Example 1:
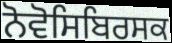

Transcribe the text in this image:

ਨੋਵੋਸਿਬਿਰਸਕ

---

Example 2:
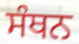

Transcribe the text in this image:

ਸੰਥਨ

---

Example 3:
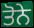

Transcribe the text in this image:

ਤੋਨੇ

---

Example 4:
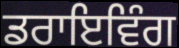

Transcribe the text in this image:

ਡਰਾਇਵਿੰਗ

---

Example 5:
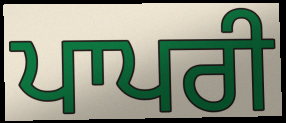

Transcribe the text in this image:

ਪਾਪਰੀ